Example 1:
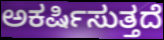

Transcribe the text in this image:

ಅಕರ್ಷಿಸುತ್ತದೆ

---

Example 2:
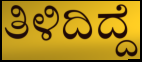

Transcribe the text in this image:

ತಿಳಿದಿದ್ದೆ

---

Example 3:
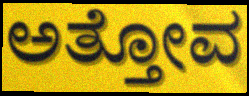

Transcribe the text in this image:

ಅತ್ತೋವ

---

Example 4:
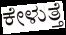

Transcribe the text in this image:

ಕೇಳುತ್ತೆ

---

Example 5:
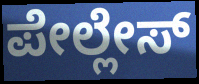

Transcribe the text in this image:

ಪೇಲ್ಲೇಸ್